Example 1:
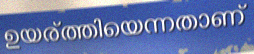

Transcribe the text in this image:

ഉയര്ത്തിയെന്നതാണ്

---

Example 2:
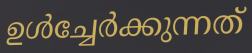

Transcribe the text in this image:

ഉൾച്ചേർക്കുന്നത്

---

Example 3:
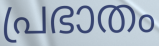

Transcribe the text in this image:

പ്രഭാതം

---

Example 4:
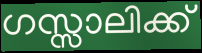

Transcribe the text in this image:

ഗസ്സാലിക്ക്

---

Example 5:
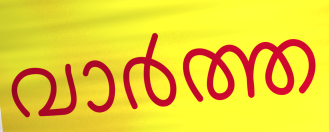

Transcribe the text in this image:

വാർത്ത